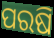
ପରଷି